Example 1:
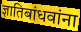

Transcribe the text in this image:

ज्ञातिबांधवांना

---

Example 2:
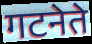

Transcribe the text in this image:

गटनेते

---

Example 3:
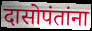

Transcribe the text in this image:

दासोपंतांना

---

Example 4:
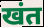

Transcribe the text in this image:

खंत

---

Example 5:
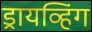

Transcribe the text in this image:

ड्रायव्हिंग